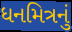
ધનમિત્રનું